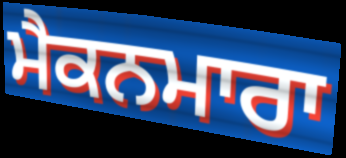
ਮੈਕਨਮਾਰਾ